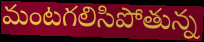
మంటగలిసిపోతున్న